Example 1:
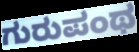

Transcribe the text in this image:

ಗುರುಪಂಥ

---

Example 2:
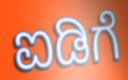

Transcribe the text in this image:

ಐಡಿಗೆ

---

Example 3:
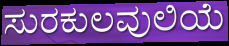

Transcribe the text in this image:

ಸುರಕುಲವುಲಿಯೆ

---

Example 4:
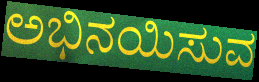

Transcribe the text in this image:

ಅಭಿನಯಿಸುವ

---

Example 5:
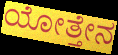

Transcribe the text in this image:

ಯೋತ್ತೇನ